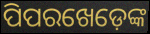
ପିପରଖେଡ଼େଙ୍କ